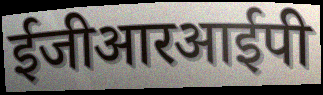
ईजीआरआईपी